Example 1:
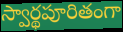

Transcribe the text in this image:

స్వార్థపూరితంగా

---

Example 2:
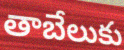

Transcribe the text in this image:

తాబేలుకు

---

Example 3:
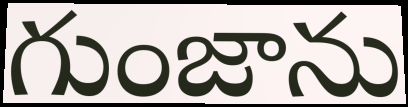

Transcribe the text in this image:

గుంజాను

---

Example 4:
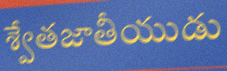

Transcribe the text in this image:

శ్వేతజాతీయుడు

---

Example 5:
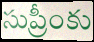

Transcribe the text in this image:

సుప్రీంకు